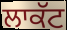
ਲਾਕੱਟ